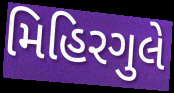
મિહિરગુલે